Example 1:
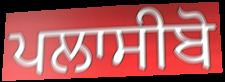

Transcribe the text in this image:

ਪਲਾਸੀਬੋ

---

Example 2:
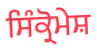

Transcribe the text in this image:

ਸਿੰਕ੍ਰੋਮੇਸ਼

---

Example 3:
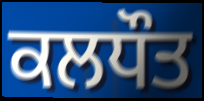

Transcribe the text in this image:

ਕਲਧੌਤ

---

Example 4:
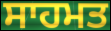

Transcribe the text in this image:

ਸਾਹਮਤ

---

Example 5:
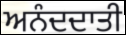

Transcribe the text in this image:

ਅਨੰਦਦਾਤੀ